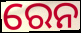
ରେନ